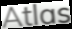
Atlas